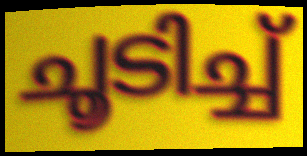
ചൂടിച്ച്